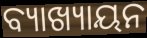
ବ୍ୟାଖ୍ୟାୟନ